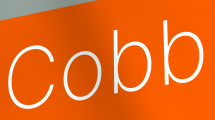
Cobb